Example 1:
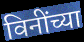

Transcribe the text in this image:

विनींच्या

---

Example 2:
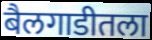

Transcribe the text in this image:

बैलगाडीतला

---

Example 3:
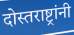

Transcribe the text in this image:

दोस्तराष्ट्रांनी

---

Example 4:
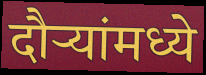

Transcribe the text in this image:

दौऱ्यांमध्ये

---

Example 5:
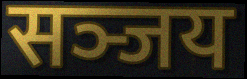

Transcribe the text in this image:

सञ्जय